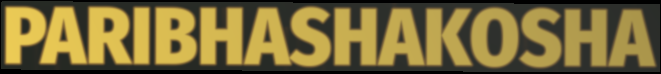
PARIBHASHAKOSHA